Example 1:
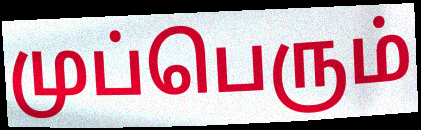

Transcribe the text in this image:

முப்பெரும்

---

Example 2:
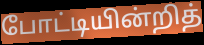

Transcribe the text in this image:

போட்டியின்றித்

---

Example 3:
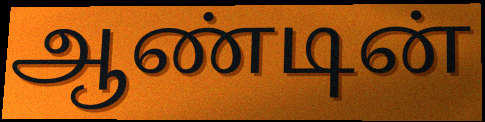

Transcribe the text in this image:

ஆண்டின்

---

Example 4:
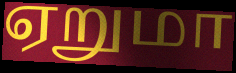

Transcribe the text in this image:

ஏறுமா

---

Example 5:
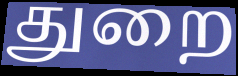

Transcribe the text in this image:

துறை